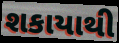
શકાયાથી